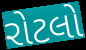
રોટલો